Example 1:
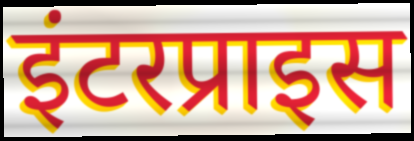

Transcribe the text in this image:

इंटरप्राइस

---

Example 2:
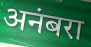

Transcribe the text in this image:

अनंबरा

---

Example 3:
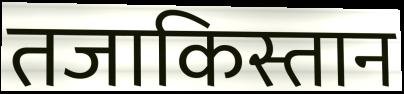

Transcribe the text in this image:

तजाकिस्‍तान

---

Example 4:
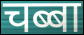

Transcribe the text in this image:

चब्बा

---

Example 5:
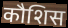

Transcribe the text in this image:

कौशिस